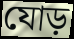
যোড়